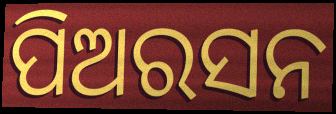
ପିଅରସନ